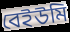
বেইউমি